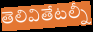
తెలివితేటల్నీ